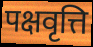
पक्षवृत्ति